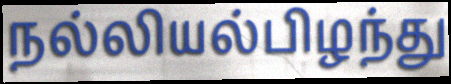
நல்லியல்பிழந்து